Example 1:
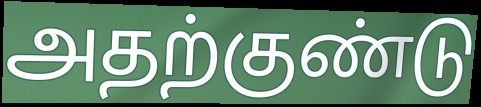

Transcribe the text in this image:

அதற்குண்டு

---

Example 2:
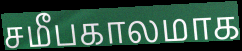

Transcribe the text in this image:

சமீபகாலமாக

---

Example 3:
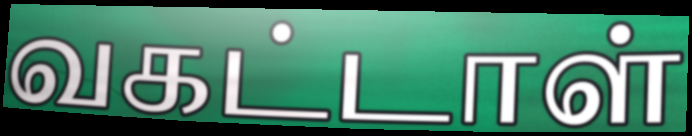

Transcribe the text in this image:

வகட்டாள்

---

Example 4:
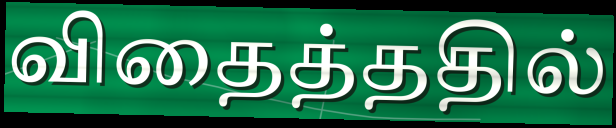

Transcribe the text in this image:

விதைத்ததில்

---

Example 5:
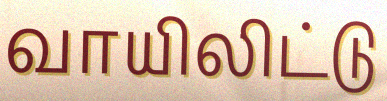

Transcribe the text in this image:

வாயிலிட்டு